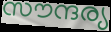
സൗന്ദര്യ